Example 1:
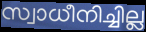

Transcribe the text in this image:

സ്വാധീനിച്ചില്ല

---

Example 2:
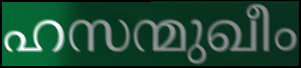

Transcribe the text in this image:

ഹസന്മുഖീം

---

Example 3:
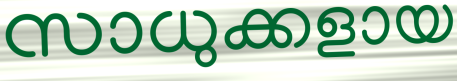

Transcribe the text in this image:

സാധുക്കളായ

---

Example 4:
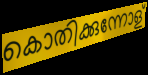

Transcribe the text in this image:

കൊതിക്കുന്നോള്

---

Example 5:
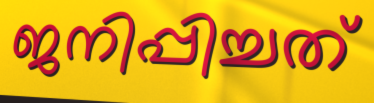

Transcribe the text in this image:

ജനിപ്പിച്ചത്